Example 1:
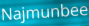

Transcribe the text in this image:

Najmunbee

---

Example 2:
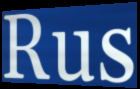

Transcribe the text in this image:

Rus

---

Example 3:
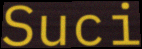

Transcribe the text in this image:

Suci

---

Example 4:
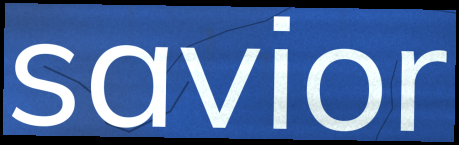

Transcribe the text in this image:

savior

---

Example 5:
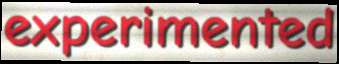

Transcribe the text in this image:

experimented